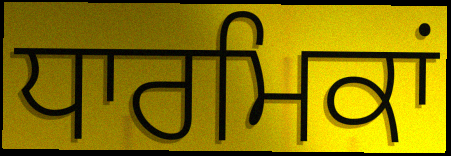
ਧਾਰਮਿਕਾਂ